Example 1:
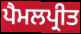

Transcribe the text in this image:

ਪੈਮਲਪ੍ਰੀਤ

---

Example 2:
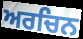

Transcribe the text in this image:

ਅਰਚਿਨ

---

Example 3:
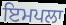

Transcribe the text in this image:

ਇਮਪਲਾ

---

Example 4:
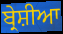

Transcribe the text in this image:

ਬ੍ਰੇਸ਼ੀਆ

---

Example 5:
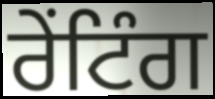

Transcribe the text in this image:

ਰੇਂਟਿੰਗ